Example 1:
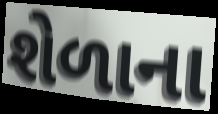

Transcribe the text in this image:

શેળાના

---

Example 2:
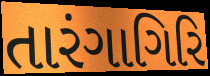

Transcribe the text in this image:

તારંગાગિરિ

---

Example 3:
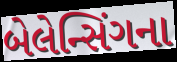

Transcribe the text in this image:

બેલેન્સિંગના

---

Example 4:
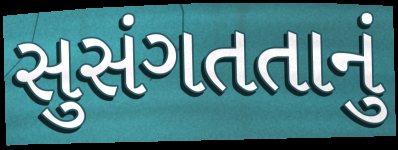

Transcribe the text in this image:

સુસંગતતાનું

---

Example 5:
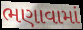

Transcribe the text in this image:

ભણાવામાં